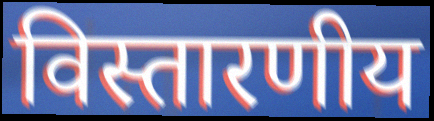
विस्तारणीय